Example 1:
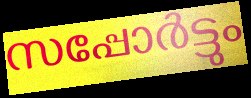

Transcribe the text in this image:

സപ്പോർട്ടും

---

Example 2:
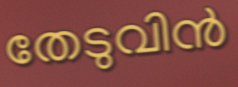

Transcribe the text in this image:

തേടുവിൻ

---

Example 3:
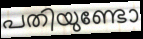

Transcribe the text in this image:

പതിയുണ്ടോ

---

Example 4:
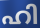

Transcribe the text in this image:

ഹി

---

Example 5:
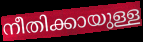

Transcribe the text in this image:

നീതിക്കായുള്ള